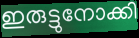
ഇരുട്ടുനോക്കി